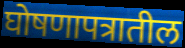
घोषणापत्रातील